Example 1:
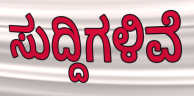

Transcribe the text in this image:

ಸುದ್ದಿಗಳಿವೆ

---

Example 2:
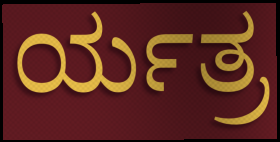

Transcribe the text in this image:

ರ್ಯತ್ರ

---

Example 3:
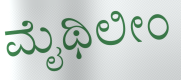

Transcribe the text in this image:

ಮೈಥಿಲೀಂ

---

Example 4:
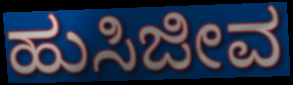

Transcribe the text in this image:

ಹುಸಿಜೀವ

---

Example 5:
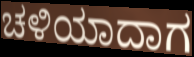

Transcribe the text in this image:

ಚಳಿಯಾದಾಗ